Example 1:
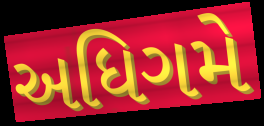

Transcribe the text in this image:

અધિગમે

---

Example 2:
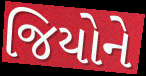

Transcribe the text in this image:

જિયોને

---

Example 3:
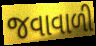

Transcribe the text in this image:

જવાવાળી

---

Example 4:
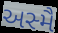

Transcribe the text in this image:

અસ્મૈ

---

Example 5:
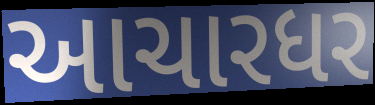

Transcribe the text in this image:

આચારધર